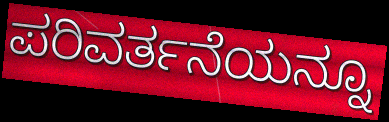
ಪರಿವರ್ತನೆಯನ್ನೂ